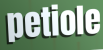
petiole